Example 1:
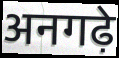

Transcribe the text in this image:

अनगढ़े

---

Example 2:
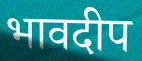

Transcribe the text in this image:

भावदीप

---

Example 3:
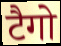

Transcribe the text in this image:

टैगो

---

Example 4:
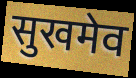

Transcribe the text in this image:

सुखमेव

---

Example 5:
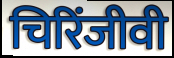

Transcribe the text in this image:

चिरिंजीवी